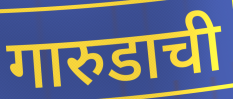
गारुडाची